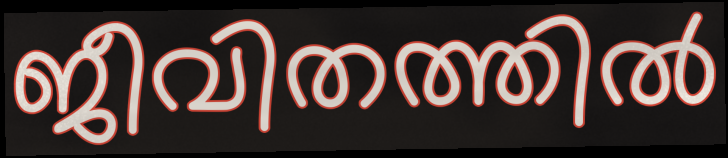
ജീവിതത്തിൽ